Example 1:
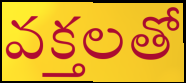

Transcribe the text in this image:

వక్తలతో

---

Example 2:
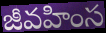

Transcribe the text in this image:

జీవహింస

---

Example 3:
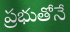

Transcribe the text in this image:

ప్రభుతోనే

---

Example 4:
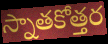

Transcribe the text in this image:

స్నాతకోత్తర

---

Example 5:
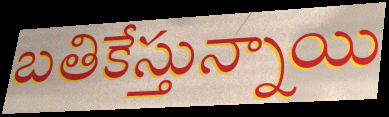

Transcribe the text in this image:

బతికేస్తున్నాయి